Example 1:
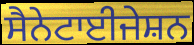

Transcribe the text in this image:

ਸੈਨੇਟਾਈਜੇਸ਼ਨ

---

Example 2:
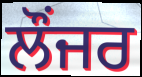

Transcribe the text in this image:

ਲੌਂਜਰ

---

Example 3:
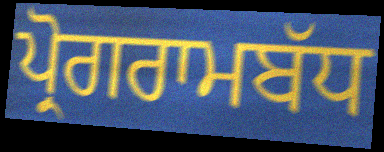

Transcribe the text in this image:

ਪ੍ਰੋਗਰਾਮਬੱਧ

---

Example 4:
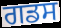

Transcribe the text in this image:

ਗਡਸ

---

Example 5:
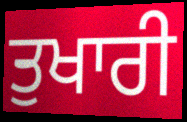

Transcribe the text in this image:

ਤੁਖਾਰੀ